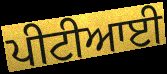
ਪੀਟੀਆਈ